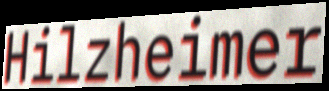
Hilzheimer